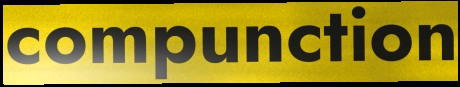
compunction